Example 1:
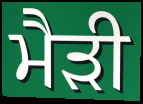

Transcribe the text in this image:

ਮੈੜੀ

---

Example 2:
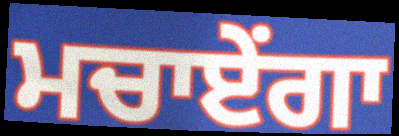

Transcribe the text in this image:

ਮਚਾਏਂਗਾ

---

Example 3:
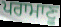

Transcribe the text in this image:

ਪਰਾਮਾਣੂ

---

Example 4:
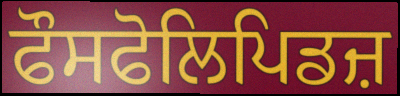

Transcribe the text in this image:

ਫੌਸਫੋਲਿਪਿਡਜ਼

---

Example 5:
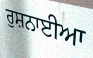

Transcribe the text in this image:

ਰੁਸ਼ਨਾਈਆ